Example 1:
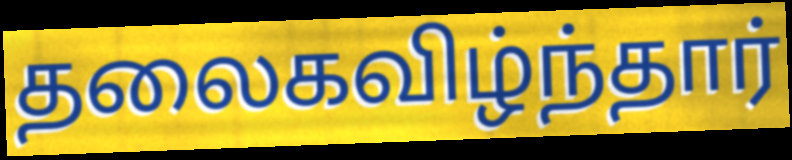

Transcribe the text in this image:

தலைகவிழ்ந்தார்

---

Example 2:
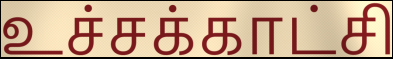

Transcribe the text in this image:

உச்சக்காட்சி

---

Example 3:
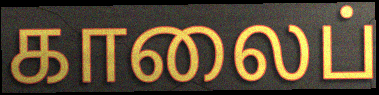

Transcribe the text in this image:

காலைப்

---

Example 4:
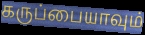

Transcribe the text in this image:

கருப்பையாவும்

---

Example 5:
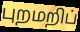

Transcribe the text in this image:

புறமறிப்